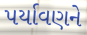
પર્યાવણને